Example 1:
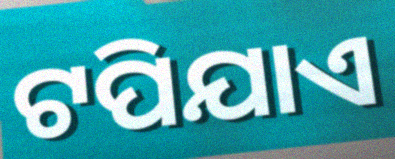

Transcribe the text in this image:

ଟପିଯାଏ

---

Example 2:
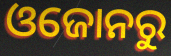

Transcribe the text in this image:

ଓଜୋନରୁ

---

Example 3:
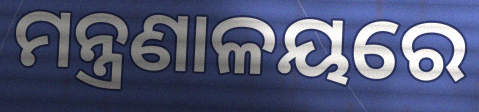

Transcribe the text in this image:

ମନ୍ତ୍ରଣାଳୟରେ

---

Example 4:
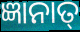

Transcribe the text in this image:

ଜ୍ଞାନାତ୍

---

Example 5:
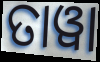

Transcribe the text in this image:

ତାୱା